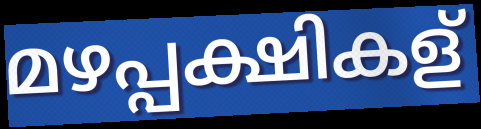
മഴപ്പക്ഷികള്